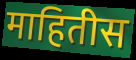
माहितीस